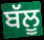
ਬੱਲੂ